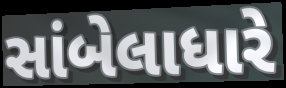
સાંબેલાધારે